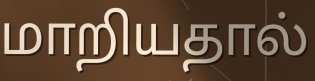
மாறியதால்